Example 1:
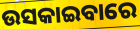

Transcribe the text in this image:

ଉସକାଇବାରେ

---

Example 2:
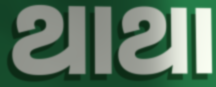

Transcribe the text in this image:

ଥାଥା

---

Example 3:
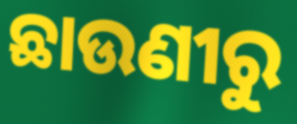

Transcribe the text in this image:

ଛାଉଣୀରୁ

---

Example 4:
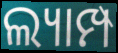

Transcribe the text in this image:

ଲ୍ୟାମ୍ପ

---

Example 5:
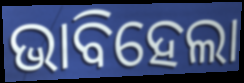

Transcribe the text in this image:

ଭାବିହେଲା